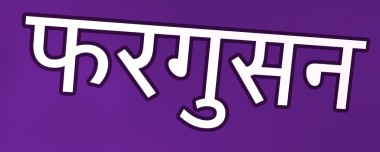
फरगुसन